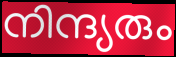
നിന്ദ്യരും